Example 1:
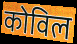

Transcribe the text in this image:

कोविल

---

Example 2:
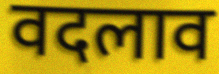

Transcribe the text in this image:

वदलाव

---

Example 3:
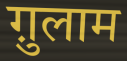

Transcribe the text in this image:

ग़ुलाम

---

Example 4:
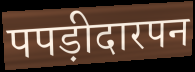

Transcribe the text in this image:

पपड़ीदारपन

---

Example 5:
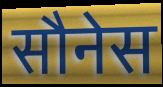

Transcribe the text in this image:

सौनेस